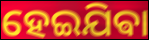
ହେଇଯିଵା